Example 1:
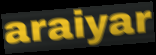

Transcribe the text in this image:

araiyar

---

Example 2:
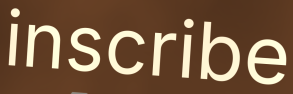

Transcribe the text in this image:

inscribe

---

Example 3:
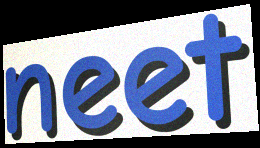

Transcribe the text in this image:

neet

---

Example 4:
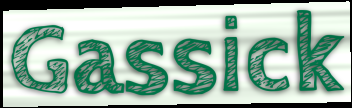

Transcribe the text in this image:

Gassick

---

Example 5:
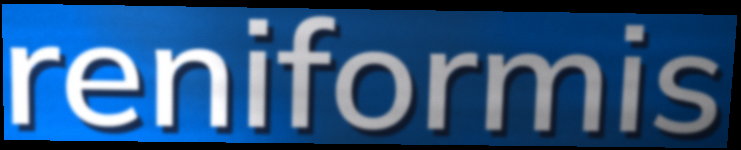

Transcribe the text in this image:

reniformis